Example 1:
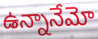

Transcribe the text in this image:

ఉన్నానేమో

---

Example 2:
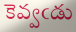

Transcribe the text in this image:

కెవ్వఁడు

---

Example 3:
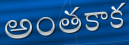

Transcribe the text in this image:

అంతకాక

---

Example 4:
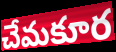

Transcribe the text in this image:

చేమకూర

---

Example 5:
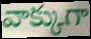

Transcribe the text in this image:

వాక్కుగా